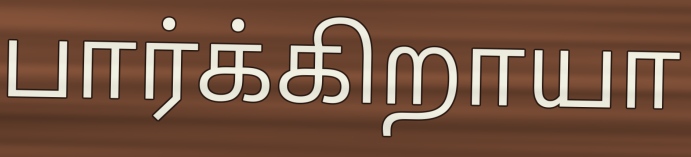
பார்க்கிறாயா